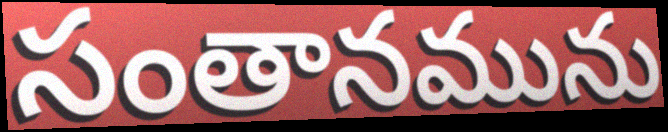
సంతానమును